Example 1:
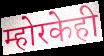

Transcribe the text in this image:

म्होरकेही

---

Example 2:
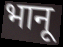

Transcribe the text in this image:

भानू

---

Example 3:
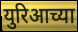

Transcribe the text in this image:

युरिआच्या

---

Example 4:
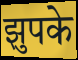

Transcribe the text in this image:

झुपके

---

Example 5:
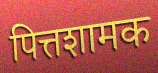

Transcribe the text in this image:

पित्तशामक